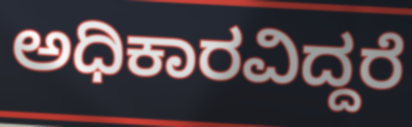
ಅಧಿಕಾರವಿದ್ದರೆ